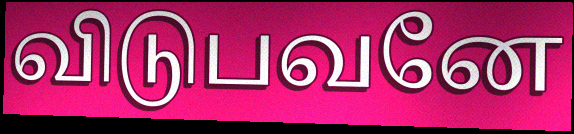
விடுபவனே